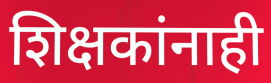
शिक्षकांनाही